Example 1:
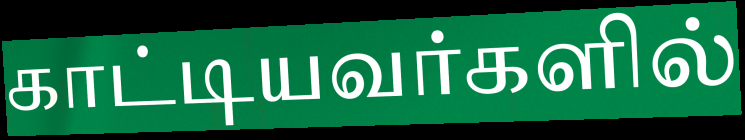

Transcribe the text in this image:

காட்டியவர்களில்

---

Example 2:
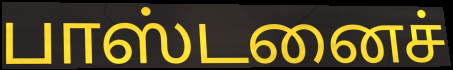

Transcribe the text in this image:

பாஸ்டனைச்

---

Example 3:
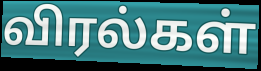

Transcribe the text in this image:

விரல்கள்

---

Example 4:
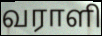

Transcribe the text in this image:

வராளி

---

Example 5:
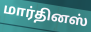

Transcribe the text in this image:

மார்தினஸ்